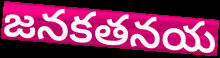
జనకతనయ